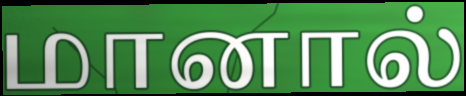
மானால்